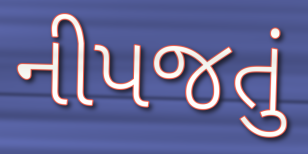
નીપજતું